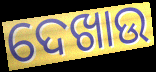
ଦେଖାଉ